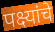
पक्ष्यांचे